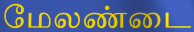
மேலண்டை